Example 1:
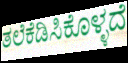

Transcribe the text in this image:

ತಲೆಕೆಡಿಸಿಕೊಳ್ಳದೆ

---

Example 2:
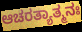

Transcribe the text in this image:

ಆಚರತ್ಯಾತ್ಮನಃ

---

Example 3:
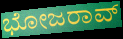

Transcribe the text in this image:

ಭೋಜರಾವ್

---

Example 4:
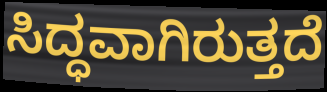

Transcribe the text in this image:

ಸಿದ್ಧವಾಗಿರುತ್ತದೆ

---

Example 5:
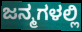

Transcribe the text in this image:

ಜನ್ಮಗಳಲ್ಲಿ